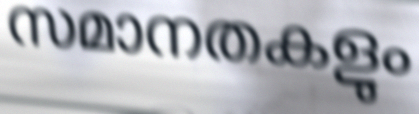
സമാനതകളും